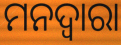
ମନଦ୍ଵାରା